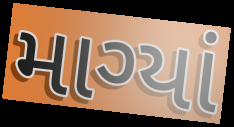
માગ્યાં